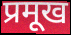
प्रमूख